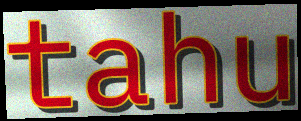
tahu